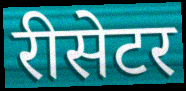
रीसेटर